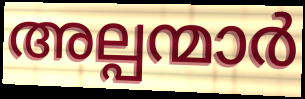
അല്പന്മാർ